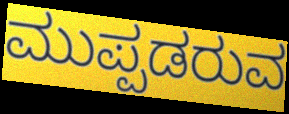
ಮುಪ್ಪಡರುವ